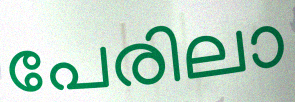
പേരിലാ